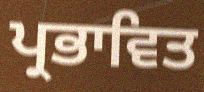
ਪ੍ਰਭਾਵਿਤ